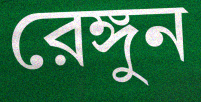
রেঙ্গুন